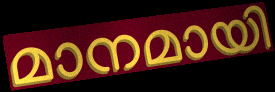
മാനമായി